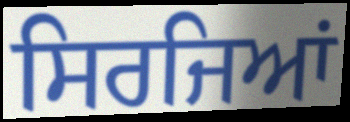
ਸਿਰਜਿਆਂ